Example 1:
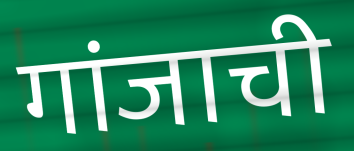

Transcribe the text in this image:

गांजाची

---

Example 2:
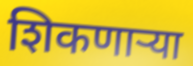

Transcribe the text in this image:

शिकणाऱ्या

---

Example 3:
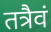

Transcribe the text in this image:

तत्रैवं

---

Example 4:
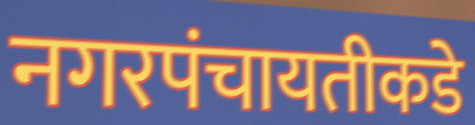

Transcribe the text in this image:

नगरपंचायतीकडे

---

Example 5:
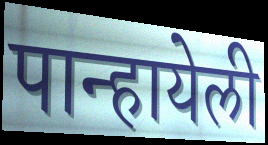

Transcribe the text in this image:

पान्हायेली